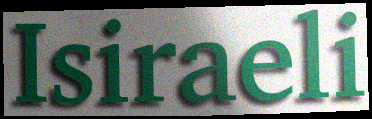
Isiraeli